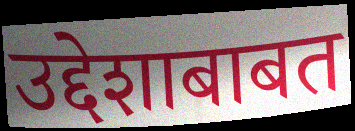
उद्देशाबाबत